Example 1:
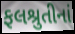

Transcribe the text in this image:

ફલશ્રુતીનાં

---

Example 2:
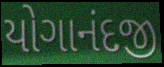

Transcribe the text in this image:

યોગાનંદજી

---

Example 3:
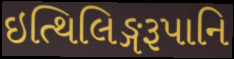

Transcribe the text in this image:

ઇત્થિલિઙ્ગરૂપાનિ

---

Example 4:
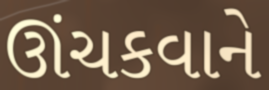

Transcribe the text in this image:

ઊંચકવાને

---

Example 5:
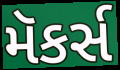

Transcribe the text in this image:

મૅકર્સ